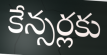
కేన్సర్లకు